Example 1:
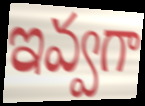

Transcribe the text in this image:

ఇవ్వగా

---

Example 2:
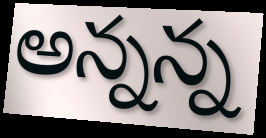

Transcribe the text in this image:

అన్నన్న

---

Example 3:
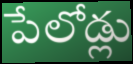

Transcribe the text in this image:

పేలోడ్లు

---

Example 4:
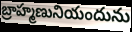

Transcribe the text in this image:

బ్రాహ్మణునియందును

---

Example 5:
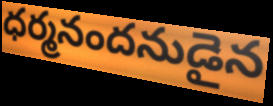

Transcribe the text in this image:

ధర్మనందనుడైన